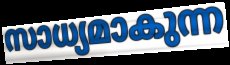
സാധ്യമാകുന്ന